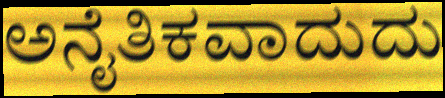
ಅನೈತಿಕವಾದುದು